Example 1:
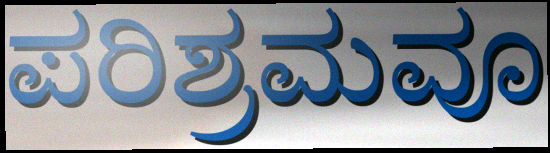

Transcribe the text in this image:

ಪರಿಶ್ರಮವೂ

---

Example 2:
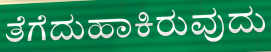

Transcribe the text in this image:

ತೆಗೆದುಹಾಕಿರುವುದು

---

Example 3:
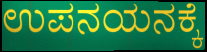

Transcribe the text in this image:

ಉಪನಯನಕ್ಕೆ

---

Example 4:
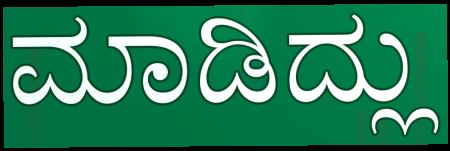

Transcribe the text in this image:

ಮಾಡಿದ್ಲು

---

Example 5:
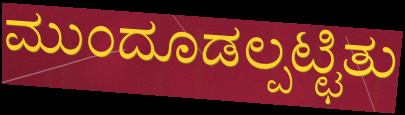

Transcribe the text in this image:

ಮುಂದೂಡಲ್ಪಟ್ಟಿತು